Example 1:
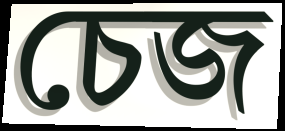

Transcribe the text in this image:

চেজ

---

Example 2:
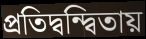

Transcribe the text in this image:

প্রতিদ্বন্দ্বিতায়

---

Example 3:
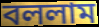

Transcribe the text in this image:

বললাম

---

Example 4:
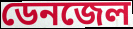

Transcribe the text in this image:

ডেনজেল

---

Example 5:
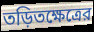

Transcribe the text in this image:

তড়িতক্ষেত্রের